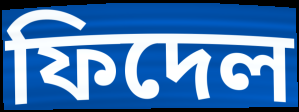
ফিদেল